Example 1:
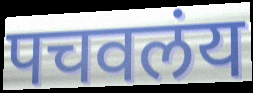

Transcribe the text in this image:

पचवलंय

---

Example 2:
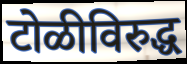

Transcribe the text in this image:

टोळीविरुद्ध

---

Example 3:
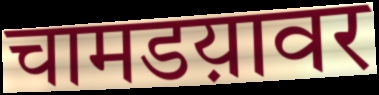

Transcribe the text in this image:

चामडय़ावर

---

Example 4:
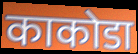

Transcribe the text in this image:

काकोडा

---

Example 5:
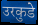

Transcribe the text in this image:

उरकुडे